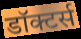
डॉक्टर्स